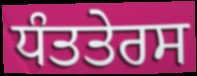
ਧੰਤਤੇਰਸ